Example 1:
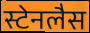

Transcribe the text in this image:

स्टेनलैस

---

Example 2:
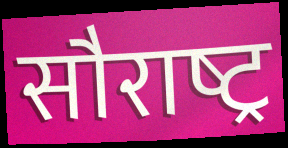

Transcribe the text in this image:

सौराष्ट्र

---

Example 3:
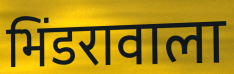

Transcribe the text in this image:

भिंडरावाला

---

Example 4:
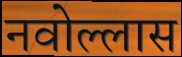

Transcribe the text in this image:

नवोल्लास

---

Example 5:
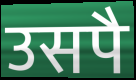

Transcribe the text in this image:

उसपै